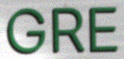
GRE